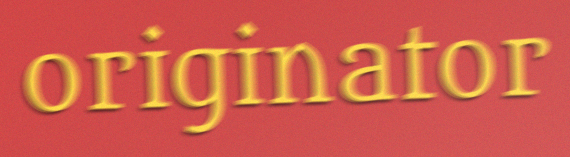
originator